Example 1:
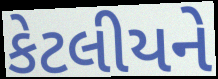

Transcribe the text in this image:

કેટલીયને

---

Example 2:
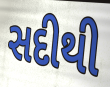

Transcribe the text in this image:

સદીથી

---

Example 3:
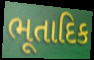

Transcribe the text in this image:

ભૂતાદિક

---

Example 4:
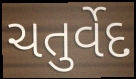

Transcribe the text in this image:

ચતુર્વેદ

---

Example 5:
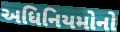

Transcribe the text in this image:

અધિનિયમોનો